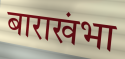
बाराखंभा